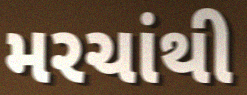
મરચાંથી